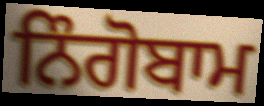
ਨਿੰਗੋਬਾਮ